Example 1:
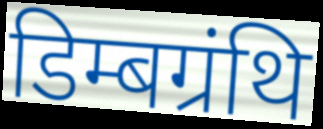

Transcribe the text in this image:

डिम्बग्रंथि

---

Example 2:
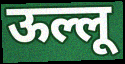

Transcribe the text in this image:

ऊल्लू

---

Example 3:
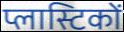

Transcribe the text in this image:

प्लास्टिकों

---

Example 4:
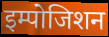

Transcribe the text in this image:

इम्पोजिशन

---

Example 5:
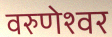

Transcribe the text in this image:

वरुणेश्वर